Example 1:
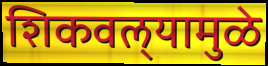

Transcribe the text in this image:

शिकवल्यामुळे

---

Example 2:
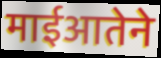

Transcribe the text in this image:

माईआतेने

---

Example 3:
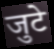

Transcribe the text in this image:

जुटे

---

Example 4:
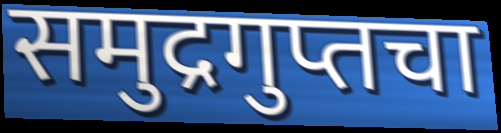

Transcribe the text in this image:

समुद्रगुप्तचा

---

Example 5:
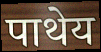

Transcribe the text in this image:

पाथेय